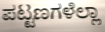
ಪಟ್ಟಣಗಳೆಲ್ಲಾ